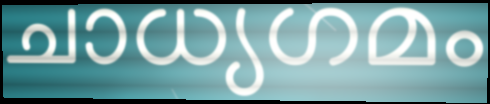
ചാധ്യഗമം